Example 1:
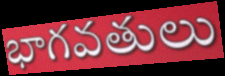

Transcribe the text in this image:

భాగవతులు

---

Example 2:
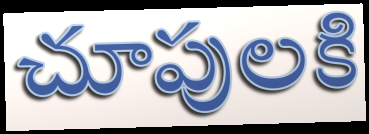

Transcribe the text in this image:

చూపులకి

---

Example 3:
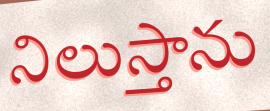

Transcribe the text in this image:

నిలుస్తాను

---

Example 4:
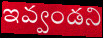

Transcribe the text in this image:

ఇవ్వండని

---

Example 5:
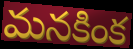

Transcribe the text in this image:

మనకింక